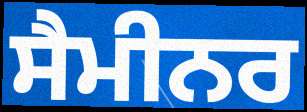
ਸੈਮੀਨਰ